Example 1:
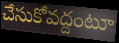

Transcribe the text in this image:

చేసుకోవద్దంటూ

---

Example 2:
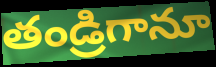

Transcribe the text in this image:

తండ్రిగానూ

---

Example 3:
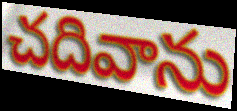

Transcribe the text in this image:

చదివాను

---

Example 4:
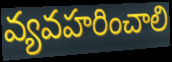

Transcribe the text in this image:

వ్యవహరించాలి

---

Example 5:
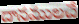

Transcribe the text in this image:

దానములచే